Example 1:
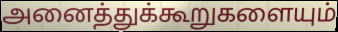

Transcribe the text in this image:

அனைத்துக்கூறுகளையும்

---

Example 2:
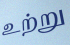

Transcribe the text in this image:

உற்று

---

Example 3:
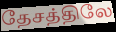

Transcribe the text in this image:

தேசத்திலே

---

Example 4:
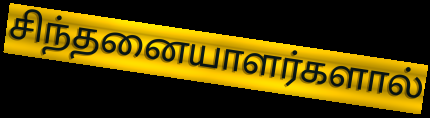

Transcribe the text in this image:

சிந்தனையாளர்களால்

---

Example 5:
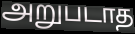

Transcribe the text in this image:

அறுபடாத